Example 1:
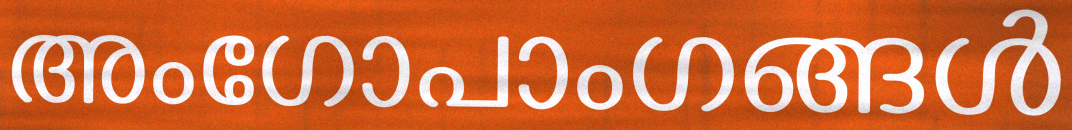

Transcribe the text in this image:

അംഗോപാംഗങ്ങൾ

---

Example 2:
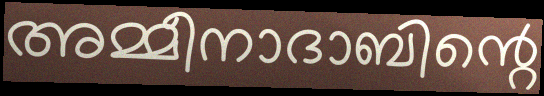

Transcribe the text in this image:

അമ്മീനാദാബിന്റെ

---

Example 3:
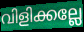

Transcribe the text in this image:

വിളിക്കല്ലേ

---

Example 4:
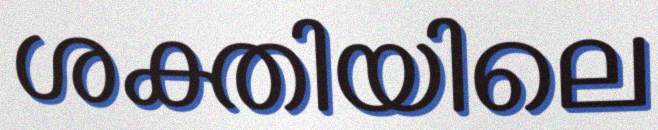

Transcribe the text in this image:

ശക്തിയിലെ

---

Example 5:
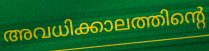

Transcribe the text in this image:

അവധിക്കാലത്തിന്റെ